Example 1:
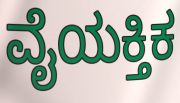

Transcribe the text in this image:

ವೈಯಕ್ತಿಕ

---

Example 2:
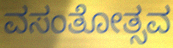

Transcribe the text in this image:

ವಸಂತೋತ್ಸವ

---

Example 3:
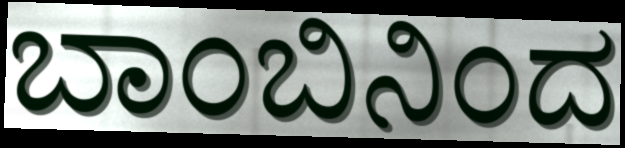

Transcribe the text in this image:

ಬಾಂಬಿನಿಂದ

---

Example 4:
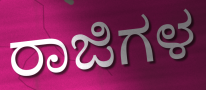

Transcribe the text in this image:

ರಾಜಿಗಳ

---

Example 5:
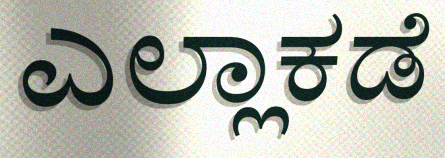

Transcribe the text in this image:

ಎಲ್ಲಾಕಡೆ